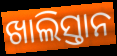
ଖାଲିସ୍ତାନ